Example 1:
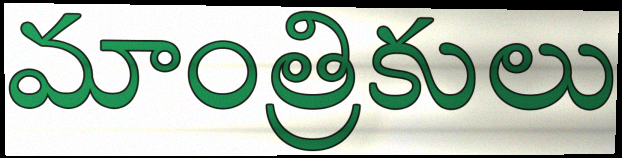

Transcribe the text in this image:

మాంత్రికులు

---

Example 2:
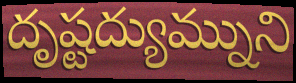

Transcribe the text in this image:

దృష్టద్యుమ్నుని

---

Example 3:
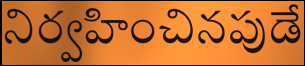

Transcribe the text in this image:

నిర్వహించినపుడే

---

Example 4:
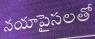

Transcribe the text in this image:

నయాపైసలతో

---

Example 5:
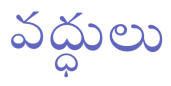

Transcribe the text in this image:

వద్ధులు